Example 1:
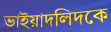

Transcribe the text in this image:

ভাইয়াদলিদকে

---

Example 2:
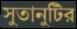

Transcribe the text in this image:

সুতানুটির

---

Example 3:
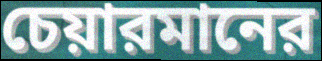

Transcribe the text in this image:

চেয়ারমানের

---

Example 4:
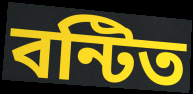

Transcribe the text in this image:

বন্টিত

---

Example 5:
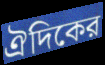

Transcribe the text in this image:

ঐদিকের